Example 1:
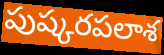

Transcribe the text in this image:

పుష్కరపలాశ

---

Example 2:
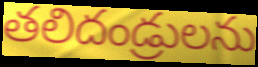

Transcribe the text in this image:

తలిదండ్రులను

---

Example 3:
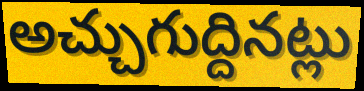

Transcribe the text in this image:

అచ్చుగుద్దినట్లు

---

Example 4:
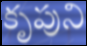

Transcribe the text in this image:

కృపుని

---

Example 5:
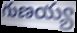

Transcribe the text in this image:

గుణయ్య